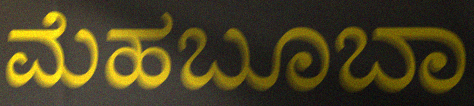
ಮೆಹಬೂಬಾ